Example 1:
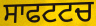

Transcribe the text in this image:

ਸਾਫਟਟਚ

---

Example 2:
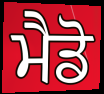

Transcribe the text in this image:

ਮੈਡੋ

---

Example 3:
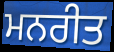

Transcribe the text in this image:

ਮਨਰੀਤ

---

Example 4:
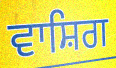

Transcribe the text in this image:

ਵਾਸ਼ਿਗ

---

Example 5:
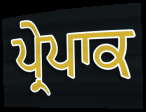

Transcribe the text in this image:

ਪ੍ਰੇਪਾਕ